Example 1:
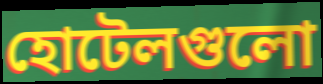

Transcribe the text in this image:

হোটেলগুলো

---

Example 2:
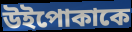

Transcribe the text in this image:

উইপোকাকে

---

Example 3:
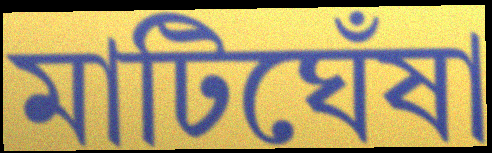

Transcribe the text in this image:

মাটিঘেঁষা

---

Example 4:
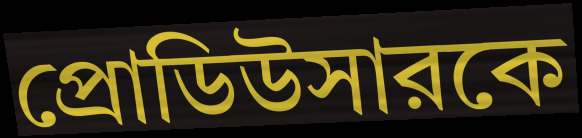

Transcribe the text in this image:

প্রোডিউসারকে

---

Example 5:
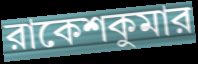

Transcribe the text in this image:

রাকেশকুমার